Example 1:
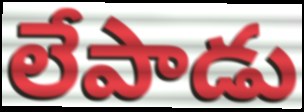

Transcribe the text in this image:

లేపాడు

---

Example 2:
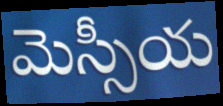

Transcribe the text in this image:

మెస్సీయ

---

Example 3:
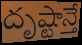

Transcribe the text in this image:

దృష్టాన్తే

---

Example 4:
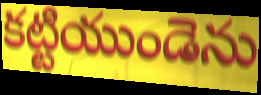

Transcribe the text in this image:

కట్టియుండెను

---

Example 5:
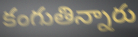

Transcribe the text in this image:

కంగుతిన్నారు